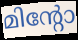
മിന്റോ